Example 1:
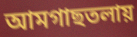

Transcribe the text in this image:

আমগাছতলায়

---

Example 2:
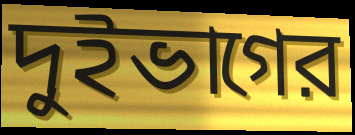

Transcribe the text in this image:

দুইভাগের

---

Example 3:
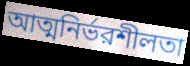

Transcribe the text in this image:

আত্মনির্ভরশীলতা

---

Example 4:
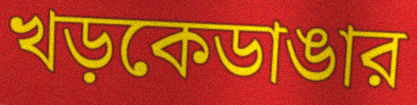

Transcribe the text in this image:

খড়কেডাঙার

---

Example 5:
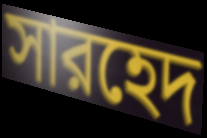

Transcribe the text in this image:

সারহেদ